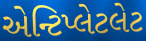
એન્ટિપ્લેટલેટ